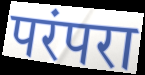
परंपरा